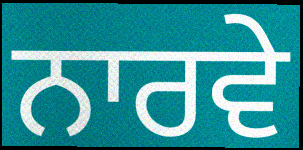
ਨਾਰਵੇ